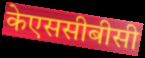
केएससीबीसी